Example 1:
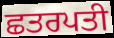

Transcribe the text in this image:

ਛਤਰਪਤੀ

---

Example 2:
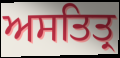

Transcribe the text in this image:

ਅਸਤਿਤ੍ਰ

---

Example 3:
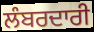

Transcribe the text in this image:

ਲੰਬਰਦਾਰੀ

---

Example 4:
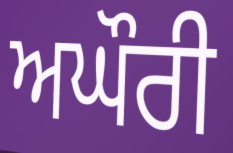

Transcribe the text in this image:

ਅਘੌਰੀ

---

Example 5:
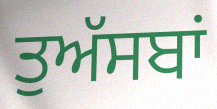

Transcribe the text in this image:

ਤੁਅੱਸਬਾਂ